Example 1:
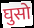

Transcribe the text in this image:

घुसो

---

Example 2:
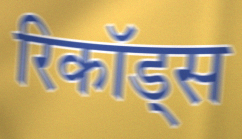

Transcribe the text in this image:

रिकॉड्स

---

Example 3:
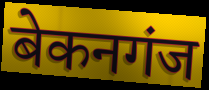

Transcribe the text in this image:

बेकनगंज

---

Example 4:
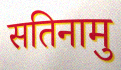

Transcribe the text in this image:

सतिनामु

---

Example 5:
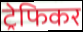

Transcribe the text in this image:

ट्रेफिकर